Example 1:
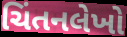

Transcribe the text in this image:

ચિંતનલેખો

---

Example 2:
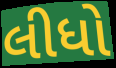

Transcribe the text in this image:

લીધો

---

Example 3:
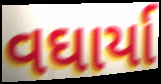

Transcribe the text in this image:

વઘાર્યા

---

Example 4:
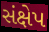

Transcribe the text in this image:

સંક્ષેપ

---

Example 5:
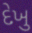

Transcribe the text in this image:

દેખુ